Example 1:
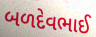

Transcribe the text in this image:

બળદેવભાઈ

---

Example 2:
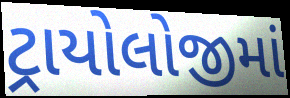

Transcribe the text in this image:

ટ્રાયોલોજીમાં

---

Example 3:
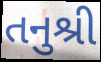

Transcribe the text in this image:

તનુશ્રી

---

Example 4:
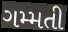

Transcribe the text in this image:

ગમ્મતી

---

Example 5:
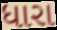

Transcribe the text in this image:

ધારા